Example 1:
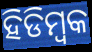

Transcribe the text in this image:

ହିଡିମ୍ବକ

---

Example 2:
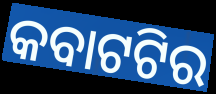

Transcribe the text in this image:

କବାଟଟିର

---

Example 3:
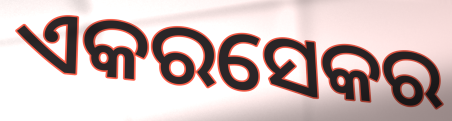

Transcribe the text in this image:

ଏକରସେକର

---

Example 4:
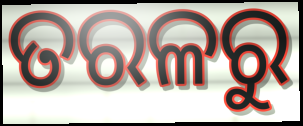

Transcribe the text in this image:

ତରଳରୁ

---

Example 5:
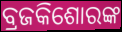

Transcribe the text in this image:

ବ୍ରଜକିଶୋରଙ୍କ